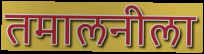
तमालनीला